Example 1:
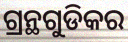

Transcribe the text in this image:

ଗ୍ରନ୍ଥଗୁଡିକର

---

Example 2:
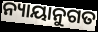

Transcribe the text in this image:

ନ୍ୟାୟାନୁଗତ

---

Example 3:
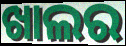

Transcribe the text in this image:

ଖାଲର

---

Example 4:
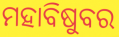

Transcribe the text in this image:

ମହାବିଷୁବର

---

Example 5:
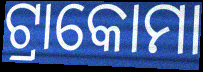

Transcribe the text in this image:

ଟ୍ରାକୋମା